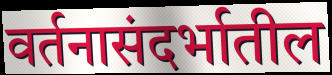
वर्तनासंदर्भातील